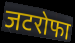
जटरोफा